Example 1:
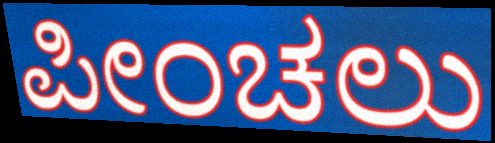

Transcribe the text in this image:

ಪೀಂಚಲು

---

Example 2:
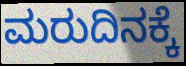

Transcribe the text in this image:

ಮರುದಿನಕ್ಕೆ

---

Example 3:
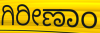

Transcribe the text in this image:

ಗಿರೀಣಾಂ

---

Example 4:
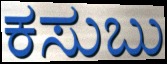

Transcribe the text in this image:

ಕಸುಬು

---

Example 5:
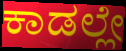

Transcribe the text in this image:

ಕಾಡಲ್ಲೇ